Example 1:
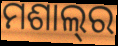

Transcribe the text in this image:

ମଶାଲ୍‌ର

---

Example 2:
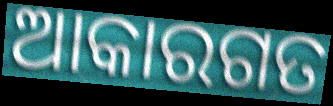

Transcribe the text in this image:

ଆକାରଗତ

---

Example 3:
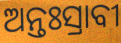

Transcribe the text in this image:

ଅନ୍ତଃସ୍ରାବୀ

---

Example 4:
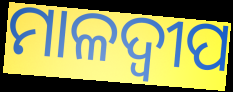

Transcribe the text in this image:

ମାଳଦ୍ବୀପ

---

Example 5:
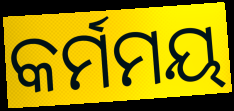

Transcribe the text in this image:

କର୍ମମୟ